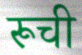
रूची